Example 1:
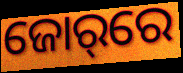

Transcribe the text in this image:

ଜୋର୍‌ରେ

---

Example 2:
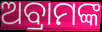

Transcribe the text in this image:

ଅବ୍ରାମଙ୍କ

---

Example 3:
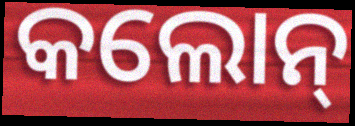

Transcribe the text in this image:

କଲୋନ୍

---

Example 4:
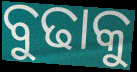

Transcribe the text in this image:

ବୁଢାକୁ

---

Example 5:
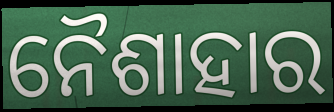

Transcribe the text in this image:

ନୈଶାହାର